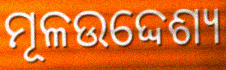
ମୂଳଉଦ୍ଦେଶ୍ୟ